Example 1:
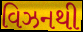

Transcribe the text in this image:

વિઝનથી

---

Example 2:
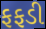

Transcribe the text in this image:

ફફડી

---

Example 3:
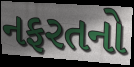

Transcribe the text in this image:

નફરતનો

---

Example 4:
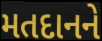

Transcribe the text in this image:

મતદાનને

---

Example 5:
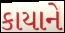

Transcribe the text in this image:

કાયાને